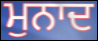
ਮੁਨਾਦ